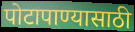
पोटापाण्यासाठी